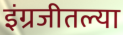
इंग्रजीतल्या